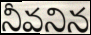
నీవనిన